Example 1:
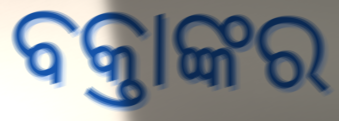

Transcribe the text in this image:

ବକ୍ତାଙ୍କର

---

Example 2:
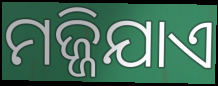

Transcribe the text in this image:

ମଜ୍ଜିଯାଏ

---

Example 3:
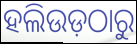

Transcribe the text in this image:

ହଲିଉଡ଼ଠାରୁ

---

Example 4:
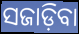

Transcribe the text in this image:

ସଜାଡ଼ିବା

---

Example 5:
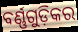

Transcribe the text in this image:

ବର୍ଣ୍ଣଗୁଡ଼ିକର